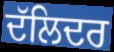
ਦੱਲਿਦਰ